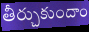
తీర్చుకుందాం